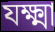
যক্ষ্মা